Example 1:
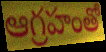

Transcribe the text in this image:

ఆగ్రహంతో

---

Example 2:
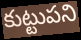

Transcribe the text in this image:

కుట్టుపని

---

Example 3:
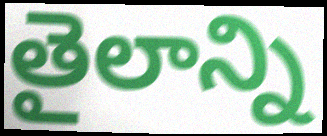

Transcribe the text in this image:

తైలాన్ని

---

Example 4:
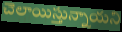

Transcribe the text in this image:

చెలాయిస్తున్నాయని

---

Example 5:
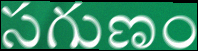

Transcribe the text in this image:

సగుణం